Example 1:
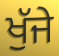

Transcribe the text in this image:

ਖੁੱਜੇ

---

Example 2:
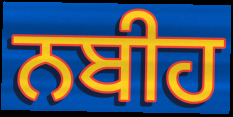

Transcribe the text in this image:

ਨਬੀਹ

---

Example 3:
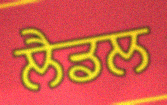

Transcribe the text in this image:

ਲੈਡਲ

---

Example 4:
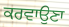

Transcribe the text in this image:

ਕਰਵਾਉਣਾ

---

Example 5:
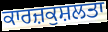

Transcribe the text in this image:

ਕਾਰਜ਼ਕੁਸ਼ਲਤਾ